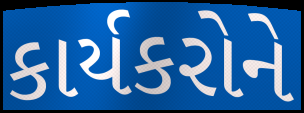
કાર્યકરોને